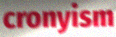
cronyism